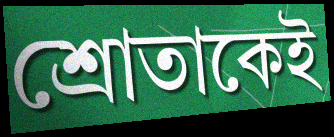
শ্রোতাকেই